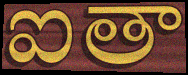
ఐతా